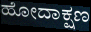
ಹೋದಾಕ್ಷಣ